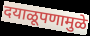
दयाळूपणामुळे